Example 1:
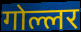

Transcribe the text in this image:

गोल्लर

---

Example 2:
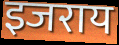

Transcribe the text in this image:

इजराय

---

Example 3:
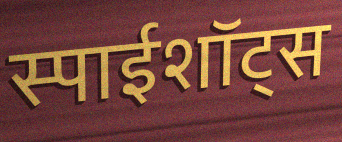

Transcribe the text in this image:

स्पाईशॉट्स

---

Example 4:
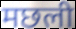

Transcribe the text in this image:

मछली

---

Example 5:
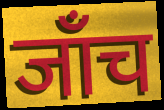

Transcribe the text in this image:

जाँच